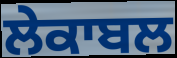
ਲੇਕਾਬਲ